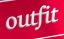
outfit